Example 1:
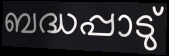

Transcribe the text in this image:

ബദ്ധപ്പാടു്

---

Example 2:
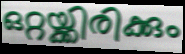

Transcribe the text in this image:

ഒറ്റയ്ക്കിരിക്കും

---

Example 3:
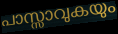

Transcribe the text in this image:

പാസ്സാവുകയും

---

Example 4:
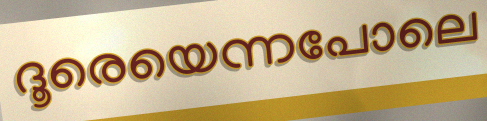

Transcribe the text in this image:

ദൂരെയെന്നപോലെ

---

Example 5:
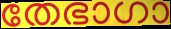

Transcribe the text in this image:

തേഭാഗാ